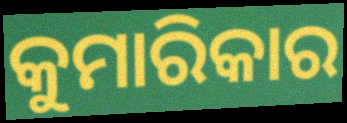
କୁମାରିକାର